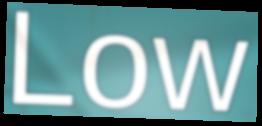
Low